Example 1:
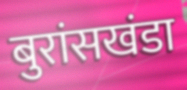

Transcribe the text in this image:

बुरांसखंडा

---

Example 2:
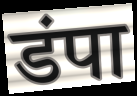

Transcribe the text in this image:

डंपा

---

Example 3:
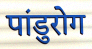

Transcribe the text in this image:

पांडुरोग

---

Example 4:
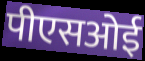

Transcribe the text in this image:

पीएसओई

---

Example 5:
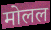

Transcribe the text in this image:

मोलल